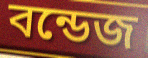
বন্ডেজ